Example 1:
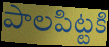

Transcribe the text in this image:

పాలపిట్టకి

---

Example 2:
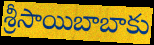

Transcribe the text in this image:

శ్రీసాయిబాబాకు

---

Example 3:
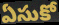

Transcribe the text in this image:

ఏసుకో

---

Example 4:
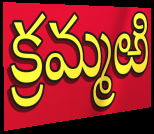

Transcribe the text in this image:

క్రమ్మఱి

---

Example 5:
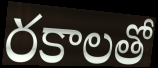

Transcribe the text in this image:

రకాలతో